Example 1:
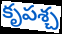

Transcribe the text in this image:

కృపశ్చ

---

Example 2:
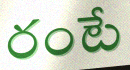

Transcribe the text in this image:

రంటే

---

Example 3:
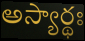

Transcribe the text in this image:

అస్యార్థః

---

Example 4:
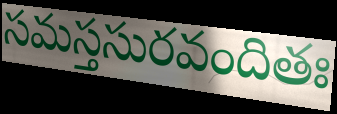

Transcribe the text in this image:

సమస్తసురవందితః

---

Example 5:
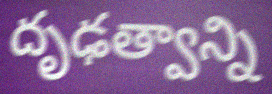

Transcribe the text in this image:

దృఢత్వాన్ని